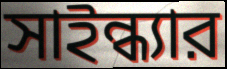
সাইন্ধ্যার